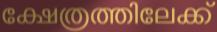
ക്ഷേത്രത്തിലേക്ക്